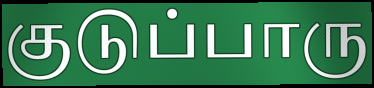
குடுப்பாரு